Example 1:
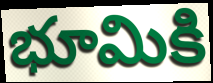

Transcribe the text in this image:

భూమికి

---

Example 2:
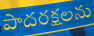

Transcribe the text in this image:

పాదరక్షలను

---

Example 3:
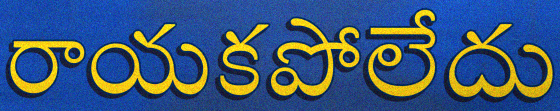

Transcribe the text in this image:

రాయకపోలేదు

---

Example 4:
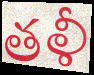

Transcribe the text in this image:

తళీ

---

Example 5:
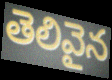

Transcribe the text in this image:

తెలివైన